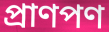
প্রাণপণ